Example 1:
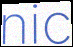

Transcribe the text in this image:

nic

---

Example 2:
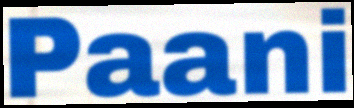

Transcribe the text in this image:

Paani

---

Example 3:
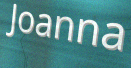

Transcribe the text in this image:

Joanna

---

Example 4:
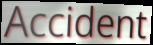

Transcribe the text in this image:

Accident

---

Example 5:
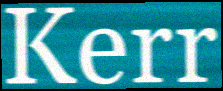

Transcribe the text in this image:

Kerr